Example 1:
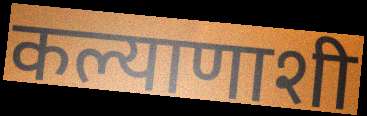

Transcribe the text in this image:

कल्याणाशी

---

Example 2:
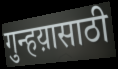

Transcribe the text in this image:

गुन्हय़ासाठी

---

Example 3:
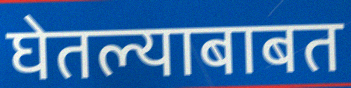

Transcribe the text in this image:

घेतल्याबाबत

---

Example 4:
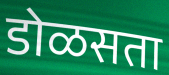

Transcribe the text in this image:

डोळसता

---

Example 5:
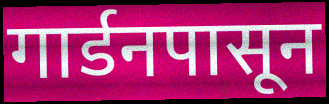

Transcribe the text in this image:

गार्डनपासून